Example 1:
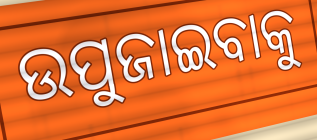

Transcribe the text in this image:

ଉପୁଜାଇବାକୁ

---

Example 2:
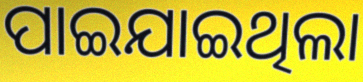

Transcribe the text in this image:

ପାଇଯାଇଥିଲା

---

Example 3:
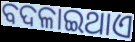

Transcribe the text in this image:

ବଦଳାଇଥାଏ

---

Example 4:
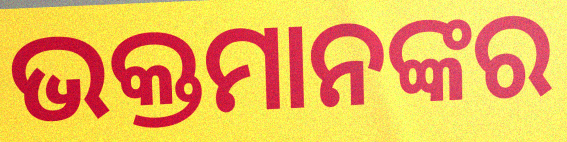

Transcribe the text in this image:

ଭକ୍ତମାନଙ୍କର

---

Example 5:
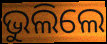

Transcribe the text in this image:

ଭୁଲିଲେ